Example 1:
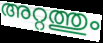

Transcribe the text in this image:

അറ്റത്തും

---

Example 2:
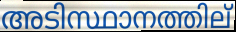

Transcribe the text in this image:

അടിസ്ഥാനത്തില്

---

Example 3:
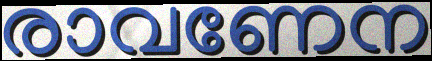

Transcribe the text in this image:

രാവണേന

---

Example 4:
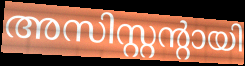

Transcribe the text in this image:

അസിസ്റ്റന്റായി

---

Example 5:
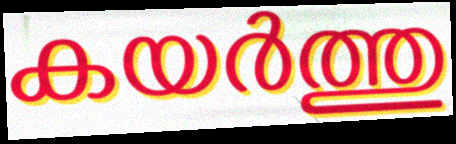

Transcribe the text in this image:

കയർത്തു